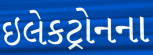
ઇલેકટ્રોનના